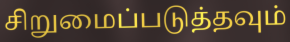
சிறுமைப்படுத்தவும்